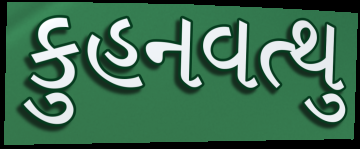
કુહનવત્થુ